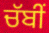
ਚੱਬੀਂ